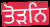
ਤੋੜਨਿ